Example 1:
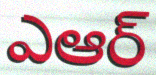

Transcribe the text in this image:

ఎఆర్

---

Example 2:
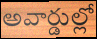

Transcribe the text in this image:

అవార్డుల్లో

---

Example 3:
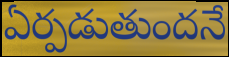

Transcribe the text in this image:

ఏర్పడుతుందనే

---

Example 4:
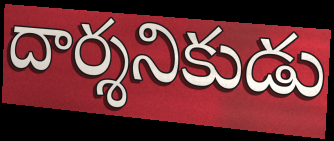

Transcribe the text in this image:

దార్శనికుడు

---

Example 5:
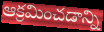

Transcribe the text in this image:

ఆక్రమించడాన్ని